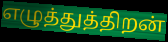
எழுத்துத்திறன்